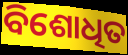
ବିଶୋଧିତ